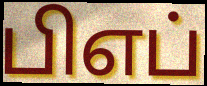
பிஎப்